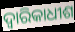
ଦ୍ୱାରିକାଧୀଶ